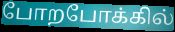
போறபோக்கில்